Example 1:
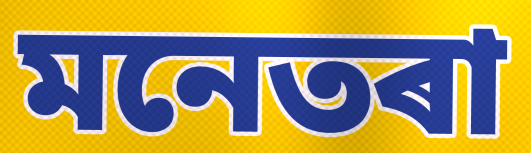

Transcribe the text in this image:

মনেতৰা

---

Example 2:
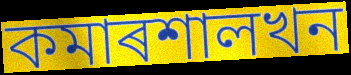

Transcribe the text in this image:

কমাৰশালখন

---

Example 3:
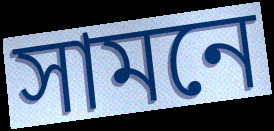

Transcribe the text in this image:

সামনে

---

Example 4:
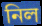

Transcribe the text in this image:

নিল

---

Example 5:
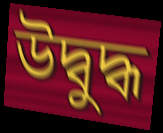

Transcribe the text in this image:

উদ্বুদ্ধ